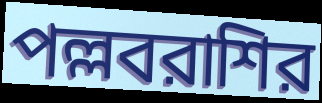
পল্লবরাশির